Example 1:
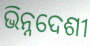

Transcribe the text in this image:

ଭିନ୍ନଦେଶୀ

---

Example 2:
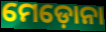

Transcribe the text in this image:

ମେଡ଼ୋନା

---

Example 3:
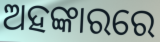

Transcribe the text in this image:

ଅହଙ୍କାରରେ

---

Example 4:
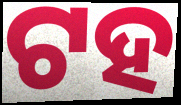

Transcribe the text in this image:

ଟହ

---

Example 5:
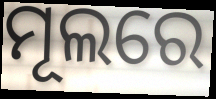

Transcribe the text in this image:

ମୂଲରେ